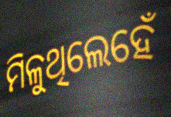
ମିଳୁଥିଲେହେଁ